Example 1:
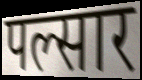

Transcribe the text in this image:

पल्सार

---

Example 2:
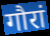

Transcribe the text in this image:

गौरां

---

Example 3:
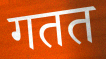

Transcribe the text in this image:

गतत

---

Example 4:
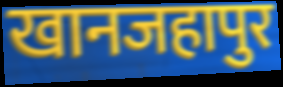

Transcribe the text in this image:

खानजहापुर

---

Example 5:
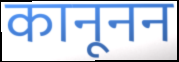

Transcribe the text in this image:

कानूनन